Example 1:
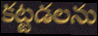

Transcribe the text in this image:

కట్టడలను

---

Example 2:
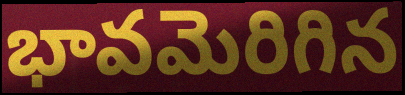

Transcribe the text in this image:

భావమెరిగిన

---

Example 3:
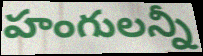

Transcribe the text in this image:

హంగులన్నీ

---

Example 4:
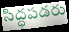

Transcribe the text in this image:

సిద్ధపడరు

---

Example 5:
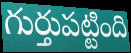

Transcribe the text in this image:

గుర్తుపట్టింది